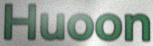
Huoon